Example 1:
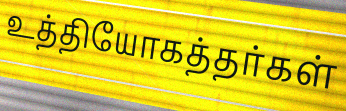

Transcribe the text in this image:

உத்தியோகத்தர்கள்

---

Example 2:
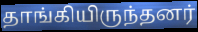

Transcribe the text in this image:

தாங்கியிருந்தனர்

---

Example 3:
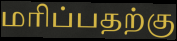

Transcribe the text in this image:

மரிப்பதற்கு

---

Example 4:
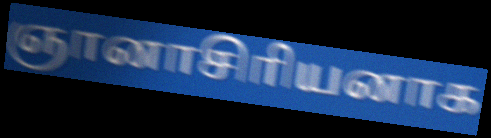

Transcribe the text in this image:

ஞானாசிரியனாக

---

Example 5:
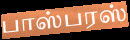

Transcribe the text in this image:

பாஸ்பரஸ்